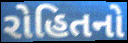
રોહિતનો